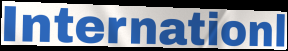
Internationl